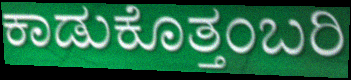
ಕಾಡುಕೊತ್ತಂಬರಿ